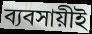
ব্যবসায়ীই